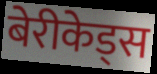
बेरीकेड्स